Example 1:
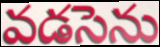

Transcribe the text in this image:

వడసెను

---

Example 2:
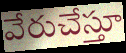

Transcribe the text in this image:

వేరుచేస్తూ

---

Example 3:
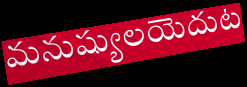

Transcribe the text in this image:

మనుష్యులయెదుట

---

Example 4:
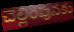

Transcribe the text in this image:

చెల్లింపునకు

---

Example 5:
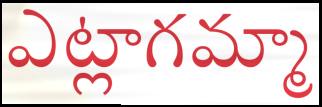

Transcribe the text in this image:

ఎట్లాగమ్మా